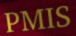
PMIS